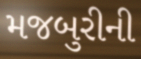
મજબુરીની